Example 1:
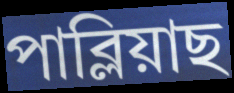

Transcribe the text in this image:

পাব্লিয়াছ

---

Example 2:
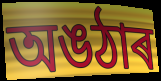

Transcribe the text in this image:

অঙঠাৰ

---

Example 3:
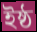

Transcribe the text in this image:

ইষ্ঠ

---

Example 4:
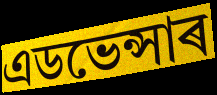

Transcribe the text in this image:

এডভেন্সাৰ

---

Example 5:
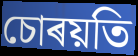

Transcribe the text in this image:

চোৰয়তি